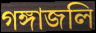
গঙ্গাজলি